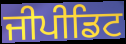
ਜੀਪੀਡਿਟ